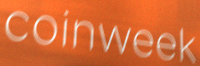
coinweek